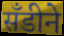
सॅंडीने